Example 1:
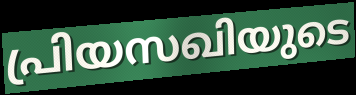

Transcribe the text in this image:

പ്രിയസഖിയുടെ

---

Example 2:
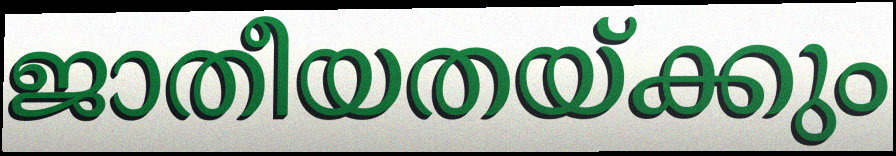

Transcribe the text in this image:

ജാതീയതയ്ക്കും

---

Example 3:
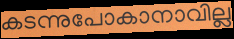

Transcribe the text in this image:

കടന്നുപോകാനാവില്ല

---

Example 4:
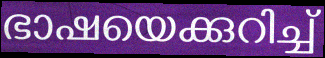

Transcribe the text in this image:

ഭാഷയെക്കുറിച്ച്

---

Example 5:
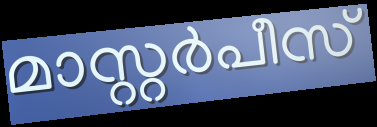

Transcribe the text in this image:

മാസ്റ്റർപീസ്